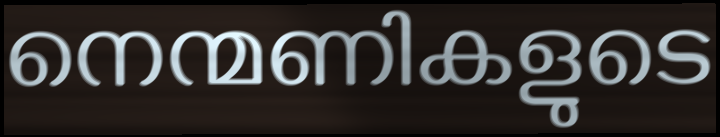
നെന്മണികളുടെ